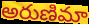
అరుణిమా